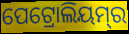
ପେଟ୍ରୋଲିୟମ୍‌ର